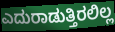
ಎದುರಾಡುತ್ತಿರಲಿಲ್ಲ